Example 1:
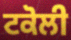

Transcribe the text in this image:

ਟਕੋਲੀ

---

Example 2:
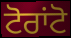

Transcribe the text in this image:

ਟੋਰਾਂਟੋ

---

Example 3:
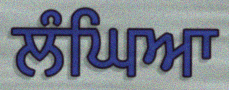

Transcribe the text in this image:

ਲੰਘਿਆ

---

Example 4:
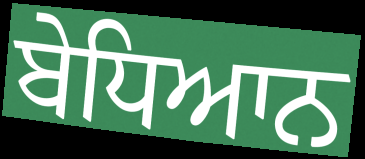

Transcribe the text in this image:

ਬੇਧਿਆਨ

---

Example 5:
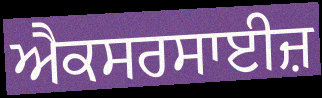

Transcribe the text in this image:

ਐਕਸਰਸਾਈਜ਼